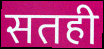
सतही